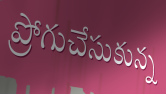
ప్రోగుచేసుకున్న